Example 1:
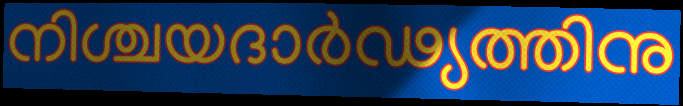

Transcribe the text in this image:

നിശ്ചയദാർഢ്യത്തിനു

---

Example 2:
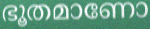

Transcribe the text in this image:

ഭൂതമാണോ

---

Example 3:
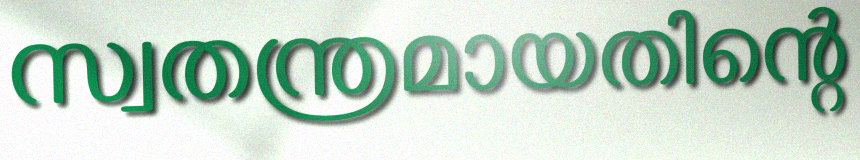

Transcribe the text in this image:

സ്വതന്ത്രമായതിന്റെ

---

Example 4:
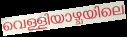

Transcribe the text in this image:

വെള്ളിയാഴ്ചയിലെ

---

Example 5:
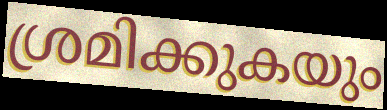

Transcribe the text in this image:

ശ്രമിക്കുകയും